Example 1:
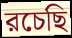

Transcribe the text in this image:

রচেছি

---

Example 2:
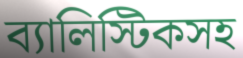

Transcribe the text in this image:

ব্যালিস্টিকসহ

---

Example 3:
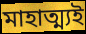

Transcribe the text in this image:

মাহাত্ম্যই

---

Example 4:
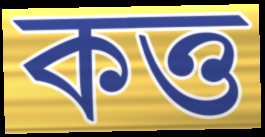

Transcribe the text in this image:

কত্ত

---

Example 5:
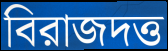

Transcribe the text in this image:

বিরাজদত্ত